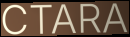
CTARA